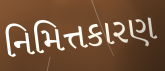
નિમિત્તકારણ